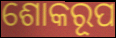
ଶୋକରୂପ